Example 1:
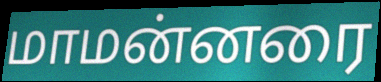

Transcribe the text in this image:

மாமன்னரை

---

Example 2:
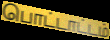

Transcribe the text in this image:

பொட்டாட்டம்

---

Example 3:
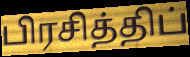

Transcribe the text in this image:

பிரசித்திப்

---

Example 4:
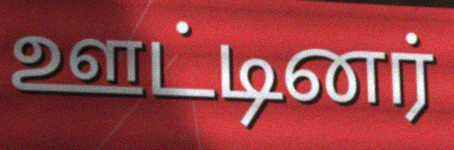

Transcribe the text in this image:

ஊட்டினர்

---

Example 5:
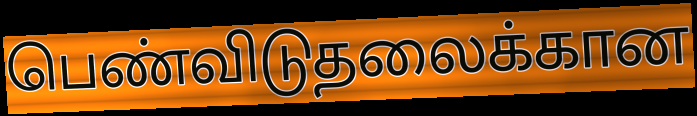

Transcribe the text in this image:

பெண்விடுதலைக்கான